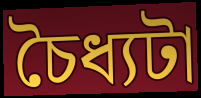
চৈধ্যটা